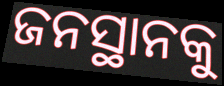
ଜନସ୍ଥାନକୁ